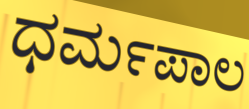
ಧರ್ಮಪಾಲ